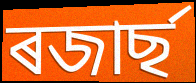
ৰজাৰ্ছ